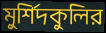
মুর্শিদকুলির